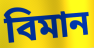
বিমান